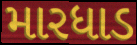
મારધાડ